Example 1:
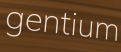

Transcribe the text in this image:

gentium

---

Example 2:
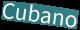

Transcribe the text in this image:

Cubano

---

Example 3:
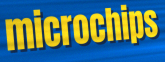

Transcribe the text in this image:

microchips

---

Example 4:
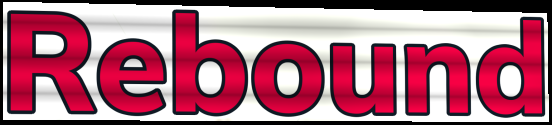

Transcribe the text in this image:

Rebound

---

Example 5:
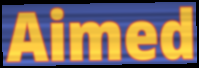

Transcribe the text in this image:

Aimed